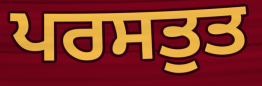
ਪਰਸਤੁਤ